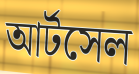
আর্টসেল